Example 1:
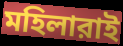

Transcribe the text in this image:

মহিলারাই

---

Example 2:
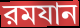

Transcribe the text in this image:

রমযান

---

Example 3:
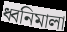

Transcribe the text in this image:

ধ্বনিমালা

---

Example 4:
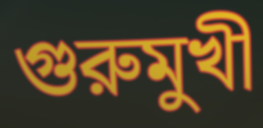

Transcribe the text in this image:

গুরুমুখী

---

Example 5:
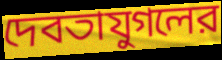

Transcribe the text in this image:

দেবতাযুগলের